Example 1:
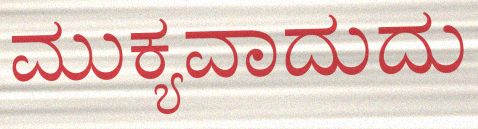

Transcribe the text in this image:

ಮುಕ್ಯವಾದುದು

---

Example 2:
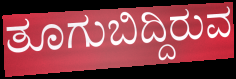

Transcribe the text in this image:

ತೂಗುಬಿದ್ದಿರುವ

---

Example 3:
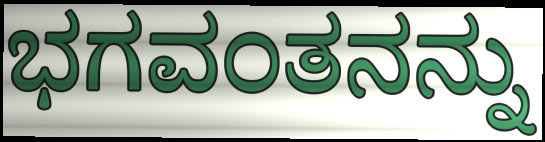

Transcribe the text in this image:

ಭಗವಂತನನ್ನು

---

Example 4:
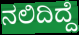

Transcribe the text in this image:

ನಲಿದಿದ್ದೆ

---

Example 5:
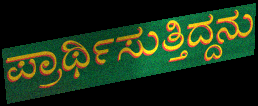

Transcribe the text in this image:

ಪ್ರಾರ್ಥಿಸುತ್ತಿದ್ದನು